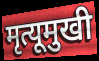
मृत्यूमुखी